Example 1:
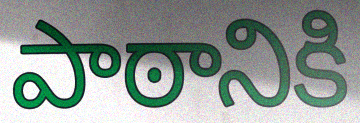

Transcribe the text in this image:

పాఠానికి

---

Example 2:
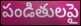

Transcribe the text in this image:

పండితులపై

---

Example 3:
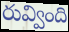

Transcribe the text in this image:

రువ్వింది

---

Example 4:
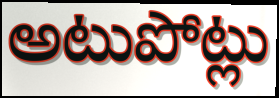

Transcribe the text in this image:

అటుపోట్లు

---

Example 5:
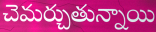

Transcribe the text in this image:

చెమర్చుతున్నాయి